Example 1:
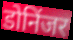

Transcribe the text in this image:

डोनिंजर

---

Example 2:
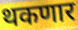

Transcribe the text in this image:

थकणार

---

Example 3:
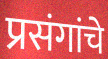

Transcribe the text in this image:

प्रसंगांचे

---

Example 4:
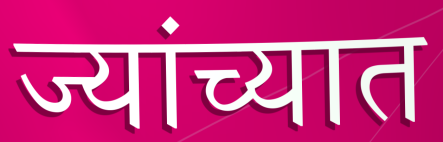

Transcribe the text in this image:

ज्यांच्यात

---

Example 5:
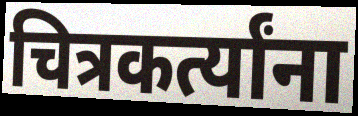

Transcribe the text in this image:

चित्रकर्त्यांना